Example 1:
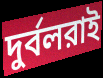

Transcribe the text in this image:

দুর্বলরাই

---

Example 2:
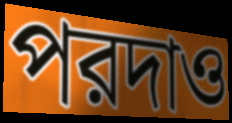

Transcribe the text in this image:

পরদাও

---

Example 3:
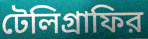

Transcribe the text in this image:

টেলিগ্রাফির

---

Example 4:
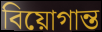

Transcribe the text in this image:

বিয়োগান্ত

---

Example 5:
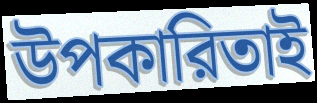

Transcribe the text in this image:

উপকারিতাই